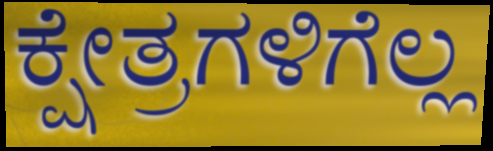
ಕ್ಷೇತ್ರಗಳಿಗೆಲ್ಲ